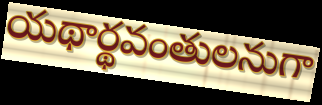
యథార్థవంతులనుగా